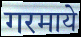
गरमाये